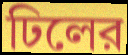
ঢিলের